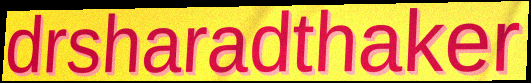
drsharadthaker